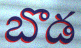
బొడ